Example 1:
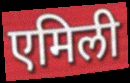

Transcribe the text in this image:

एमिली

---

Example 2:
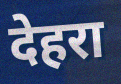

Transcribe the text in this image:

देहरा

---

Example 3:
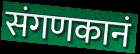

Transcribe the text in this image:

संगणकानं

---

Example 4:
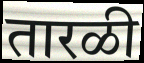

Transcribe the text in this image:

तारळी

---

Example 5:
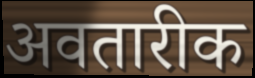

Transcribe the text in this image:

अवतारीक